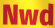
Nwd